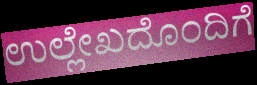
ಉಲ್ಲೇಖದೊಂದಿಗೆ